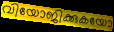
വിയോജിക്കുകയോ